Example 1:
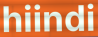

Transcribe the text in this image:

hiindi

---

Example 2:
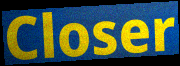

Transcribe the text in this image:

Closer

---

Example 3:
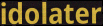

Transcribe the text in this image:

idolater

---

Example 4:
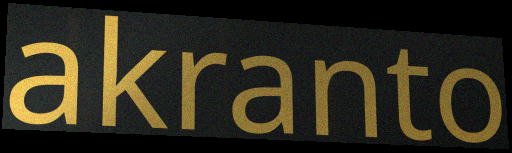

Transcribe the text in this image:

akranto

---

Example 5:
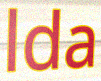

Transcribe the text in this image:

lda